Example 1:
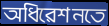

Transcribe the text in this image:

অধিৱেশনতে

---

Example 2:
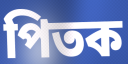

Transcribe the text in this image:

পিতক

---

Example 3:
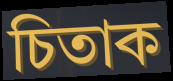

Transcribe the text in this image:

চিতাক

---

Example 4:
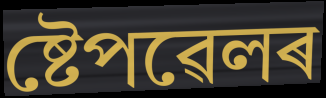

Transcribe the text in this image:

ষ্টেপৱেলৰ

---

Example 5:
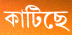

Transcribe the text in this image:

কাটিছে